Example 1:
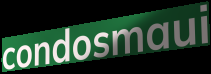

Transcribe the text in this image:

condosmaui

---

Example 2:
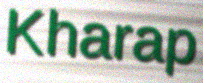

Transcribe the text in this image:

Kharap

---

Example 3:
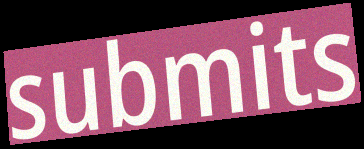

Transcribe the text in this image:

submits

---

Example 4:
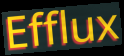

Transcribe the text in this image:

Efflux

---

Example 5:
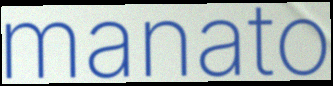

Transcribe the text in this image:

manato